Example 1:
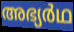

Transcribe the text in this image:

അഭ്യർഥ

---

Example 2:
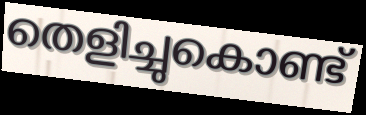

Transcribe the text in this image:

തെളിച്ചുകൊണ്ട്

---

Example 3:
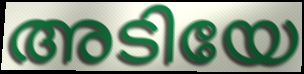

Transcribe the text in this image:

അടിയേ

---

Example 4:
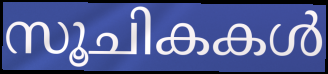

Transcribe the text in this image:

സൂചികകൾ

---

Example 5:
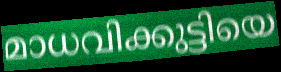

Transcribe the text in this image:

മാധവിക്കുട്ടിയെ